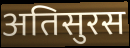
अतिसुरस